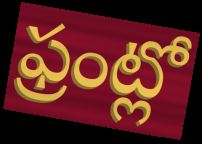
ఫ్రంట్లో